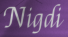
Nigdi